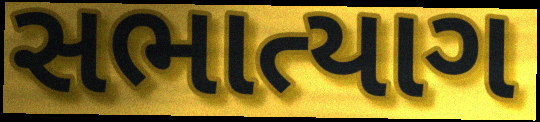
સભાત્યાગ